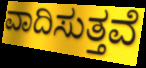
ವಾದಿಸುತ್ತವೆ